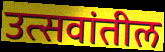
उत्सवांतील